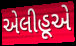
એલીહૂએ